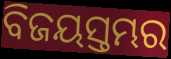
ବିଜୟସ୍ତମ୍ଭର